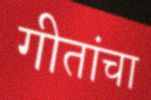
गीतांचा